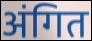
अंगित